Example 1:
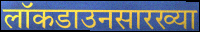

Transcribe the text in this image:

लॉकडाउनसारख्या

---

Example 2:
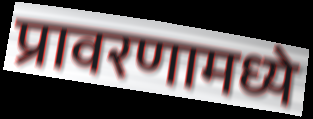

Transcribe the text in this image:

प्रावरणामध्ये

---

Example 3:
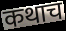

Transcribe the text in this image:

कथाच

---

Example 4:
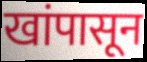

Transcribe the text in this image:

खांपासून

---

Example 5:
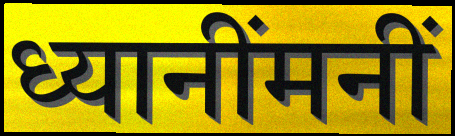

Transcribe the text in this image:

ध्यानींमनीं